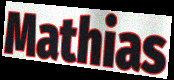
Mathias